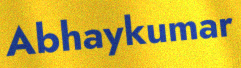
Abhaykumar